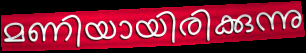
മണിയായിരിക്കുന്നു